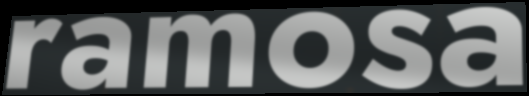
ramosa